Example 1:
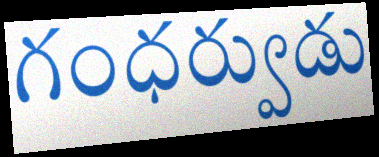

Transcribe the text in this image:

గంధర్వుడు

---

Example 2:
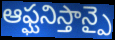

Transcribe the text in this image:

ఆఫ్ఘనిస్తాన్పై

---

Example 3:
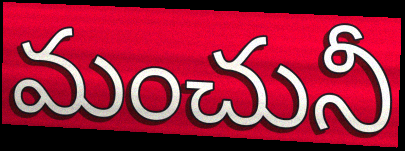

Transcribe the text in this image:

మంచునీ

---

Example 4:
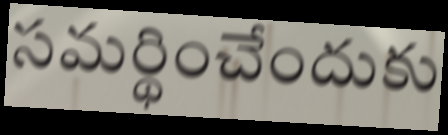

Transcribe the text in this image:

సమర్థించేందుకు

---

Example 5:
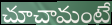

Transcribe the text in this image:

చూచామంటే